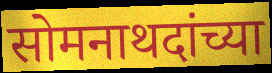
सोमनाथदांच्या